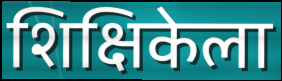
शिक्षिकेला